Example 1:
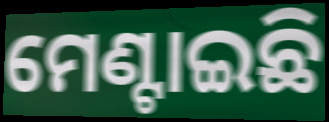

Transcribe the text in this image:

ମେଣ୍ଟାଇଛି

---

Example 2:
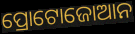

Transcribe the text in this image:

ପ୍ରୋଟୋଜୋଆନ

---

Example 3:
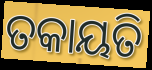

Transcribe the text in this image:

ତକାୟତି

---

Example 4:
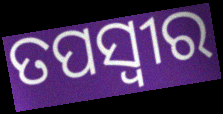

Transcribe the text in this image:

ତପସ୍ଵୀର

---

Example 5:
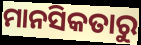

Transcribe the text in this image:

ମାନସିକତାରୁ